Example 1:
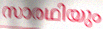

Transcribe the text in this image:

സാരഥിയും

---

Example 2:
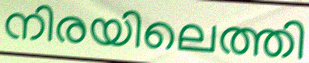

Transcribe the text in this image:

നിരയിലെത്തി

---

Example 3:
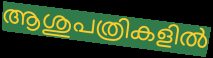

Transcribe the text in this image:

ആശുപത്രികളിൽ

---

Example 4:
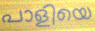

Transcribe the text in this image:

പാളിയെ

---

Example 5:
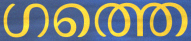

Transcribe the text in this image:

ഗത്തെ